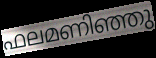
ഫലമണിഞ്ഞു